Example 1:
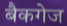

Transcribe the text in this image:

बैकगेज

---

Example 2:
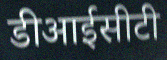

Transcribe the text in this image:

डीआईसीटी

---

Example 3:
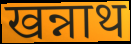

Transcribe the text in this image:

खन्नाथ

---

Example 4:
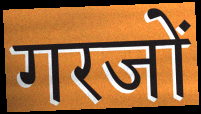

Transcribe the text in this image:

गरजों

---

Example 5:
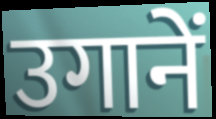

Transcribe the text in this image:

उगानें